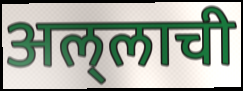
अल्लाची